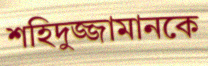
শহিদুজ্জামানকে